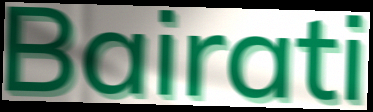
Bairati